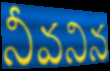
నీవనిన